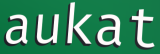
aukat